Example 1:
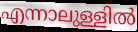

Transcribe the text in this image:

എന്നാലുള്ളിൽ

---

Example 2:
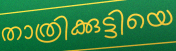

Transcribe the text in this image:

താത്രിക്കുട്ടിയെ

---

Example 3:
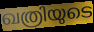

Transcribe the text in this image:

ഖത്രിയുടെ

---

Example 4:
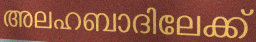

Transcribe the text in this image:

അലഹബാദിലേക്ക്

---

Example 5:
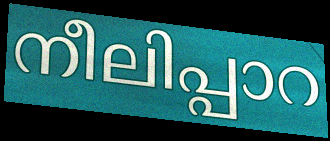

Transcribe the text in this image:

നീലിപ്പാറ